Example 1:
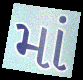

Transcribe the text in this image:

માં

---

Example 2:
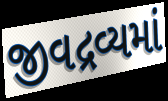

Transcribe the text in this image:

જીવદ્રવ્યમાં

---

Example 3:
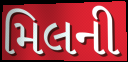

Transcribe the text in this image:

મિલની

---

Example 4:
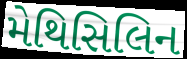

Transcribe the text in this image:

મેથિસિલિન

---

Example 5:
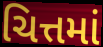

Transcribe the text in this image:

ચિત્તમાં